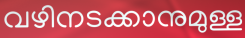
വഴിനടക്കാനുമുള്ള